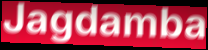
Jagdamba